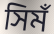
সিমঁ